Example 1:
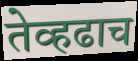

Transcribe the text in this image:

तेव्हढाच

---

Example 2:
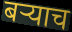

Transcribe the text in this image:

बर्‍याच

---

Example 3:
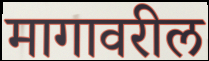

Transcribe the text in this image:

मागावरील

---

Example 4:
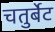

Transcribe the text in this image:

चतुर्बेट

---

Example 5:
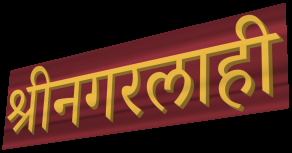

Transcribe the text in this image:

श्रीनगरलाही